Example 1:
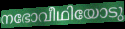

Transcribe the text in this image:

നഭോവീഥിയോടു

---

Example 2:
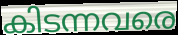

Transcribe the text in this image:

കിടന്നവരെ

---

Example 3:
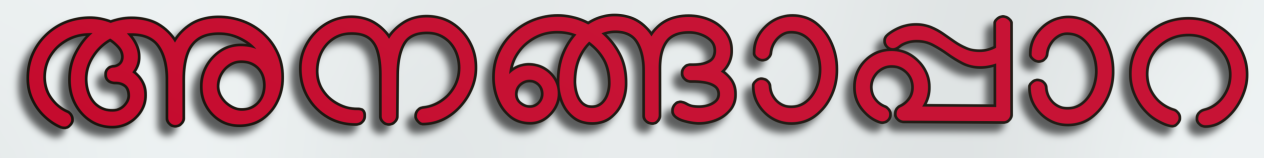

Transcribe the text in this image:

അനങ്ങാപ്പാറ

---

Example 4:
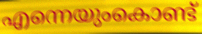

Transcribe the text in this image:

എന്നെയുംകൊണ്ട്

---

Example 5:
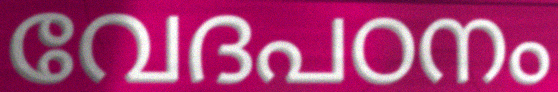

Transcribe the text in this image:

വേദപഠനം